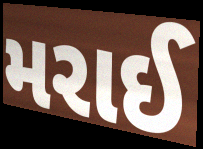
મરાઈ